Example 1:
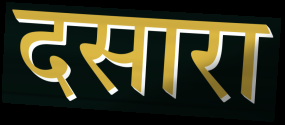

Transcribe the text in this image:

दसारा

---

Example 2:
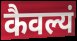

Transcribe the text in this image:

कैवल्यं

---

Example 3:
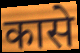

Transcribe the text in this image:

कासे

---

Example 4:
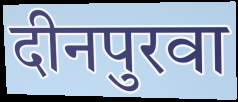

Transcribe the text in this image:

दीनपुरवा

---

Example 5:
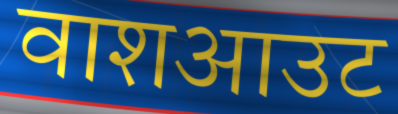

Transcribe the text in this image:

वाशआउट